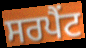
ਸਰਪੈਂਟ